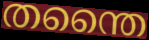
തന്തൈ